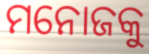
ମନୋଜକୁ